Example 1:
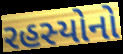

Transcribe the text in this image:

રહસ્યોનો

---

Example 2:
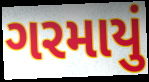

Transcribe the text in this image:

ગરમાયું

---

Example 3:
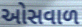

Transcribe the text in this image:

ઓસવાળ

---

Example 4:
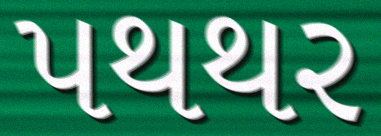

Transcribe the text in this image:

પથથર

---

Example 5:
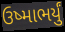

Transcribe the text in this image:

ઉષ્માભર્યું